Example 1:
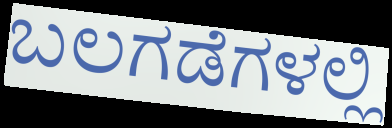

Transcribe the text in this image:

ಬಲಗಡೆಗಳಲ್ಲಿ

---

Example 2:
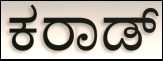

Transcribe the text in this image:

ಕರಾಡ್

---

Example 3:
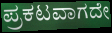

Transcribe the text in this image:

ಪ್ರಕಟವಾಗದೇ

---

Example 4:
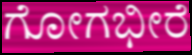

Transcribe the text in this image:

ಗೋಗಭೀರೆ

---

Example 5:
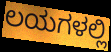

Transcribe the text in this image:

ಲಯಗಳಲ್ಲಿ